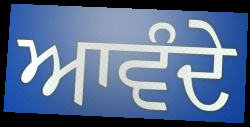
ਆਵੰਦੇ